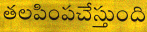
తలపింపచేస్తుంది